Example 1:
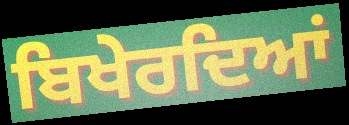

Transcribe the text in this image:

ਬਿਖੇਰਦਿਆਂ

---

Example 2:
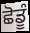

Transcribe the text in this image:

ਛੋਡੂੰ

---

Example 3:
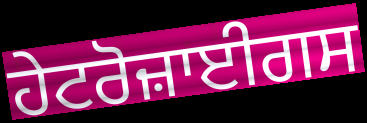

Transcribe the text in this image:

ਹੇਟਰੋਜ਼ਾਈਗਸ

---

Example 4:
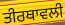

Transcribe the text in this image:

ਤੀਰਥਾਵਲੀ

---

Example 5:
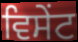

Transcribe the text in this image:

ਵਿਸੇਂਟ